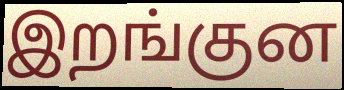
இறங்குன